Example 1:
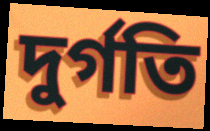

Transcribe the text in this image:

দুর্গতি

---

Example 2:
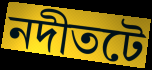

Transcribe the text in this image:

নদীতটে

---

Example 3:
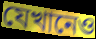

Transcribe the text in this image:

যেখানেও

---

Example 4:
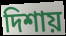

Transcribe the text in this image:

দিশায়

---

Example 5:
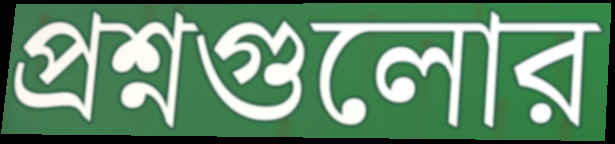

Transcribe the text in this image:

প্রশ্নগুলোর